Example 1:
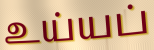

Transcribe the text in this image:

உய்யப்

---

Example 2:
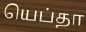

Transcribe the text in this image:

யெப்தா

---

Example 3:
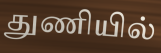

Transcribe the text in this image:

துணியில்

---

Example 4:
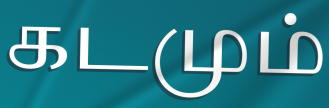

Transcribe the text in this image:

கடமும்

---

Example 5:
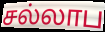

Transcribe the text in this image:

சல்லாப